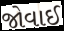
જોવાઈ